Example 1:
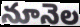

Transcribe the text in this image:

నూనెల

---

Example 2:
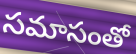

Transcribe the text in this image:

సమాసంతో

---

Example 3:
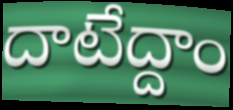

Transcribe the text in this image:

దాటేద్దాం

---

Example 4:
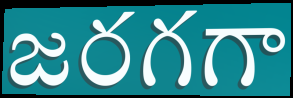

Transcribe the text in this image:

జరగగా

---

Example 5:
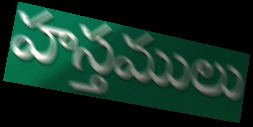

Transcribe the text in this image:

హస్తములు